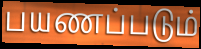
பயணப்படும்